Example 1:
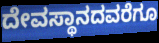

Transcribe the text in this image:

ದೇವಸ್ಥಾನದವರೆಗೂ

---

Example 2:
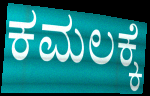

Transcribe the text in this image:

ಕಮಲಕ್ಕೆ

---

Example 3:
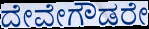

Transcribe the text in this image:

ದೇವೇಗೌಡರೇ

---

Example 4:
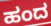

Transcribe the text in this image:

ಹಂದ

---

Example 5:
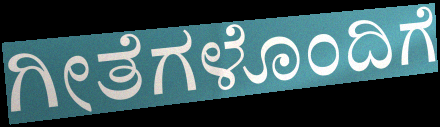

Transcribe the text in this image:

ಗೀತೆಗಳೊಂದಿಗೆ